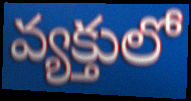
వ్యక్తులో